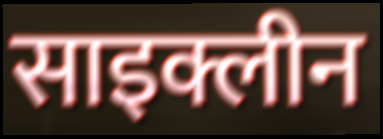
साइक्लीन